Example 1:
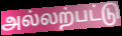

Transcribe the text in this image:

அல்லற்பட்டு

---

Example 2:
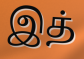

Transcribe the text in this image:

இத்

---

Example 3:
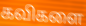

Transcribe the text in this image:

கவிகளை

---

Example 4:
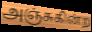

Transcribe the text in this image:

அஞ்சுகின்ற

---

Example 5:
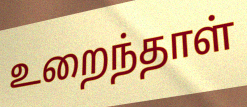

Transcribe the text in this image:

உறைந்தாள்